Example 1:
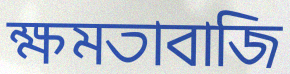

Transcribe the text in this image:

ক্ষমতাবাজি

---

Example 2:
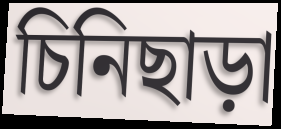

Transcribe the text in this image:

চিনিছাড়া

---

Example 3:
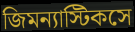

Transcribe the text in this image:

জিমন্যাস্টিকসে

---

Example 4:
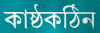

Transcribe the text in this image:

কাষ্ঠকঠিন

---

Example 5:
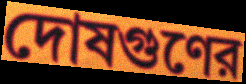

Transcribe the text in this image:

দোষগুণের